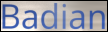
Badian